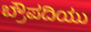
ಬ್ರೌಪದಿಯು